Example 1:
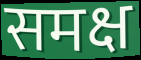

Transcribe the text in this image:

समक्ष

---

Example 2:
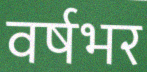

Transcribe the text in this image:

वर्षभर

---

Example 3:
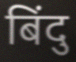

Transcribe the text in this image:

बिंदु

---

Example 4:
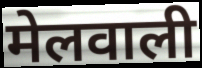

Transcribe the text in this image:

मेलवाली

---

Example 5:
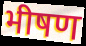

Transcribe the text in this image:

भीषण